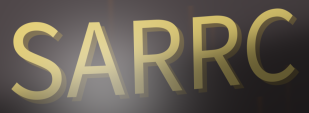
SARRC